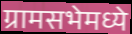
ग्रामसभेमध्ये